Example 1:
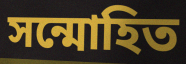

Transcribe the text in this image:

সন্মোহিত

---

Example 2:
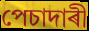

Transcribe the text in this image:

পেচাদাৰী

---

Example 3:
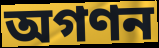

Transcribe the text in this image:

অগণন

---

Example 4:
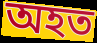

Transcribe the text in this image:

অহত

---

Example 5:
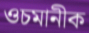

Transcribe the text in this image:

ওচমানীক